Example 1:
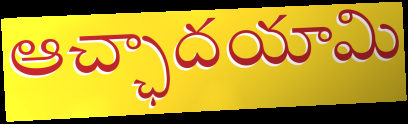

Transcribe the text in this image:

ఆచ్ఛాదయామి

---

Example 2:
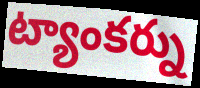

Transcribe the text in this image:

ట్యాంకర్ను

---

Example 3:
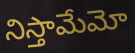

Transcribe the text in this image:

నిస్తామేమో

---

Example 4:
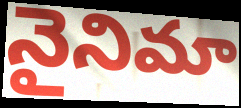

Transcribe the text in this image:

నైనిమా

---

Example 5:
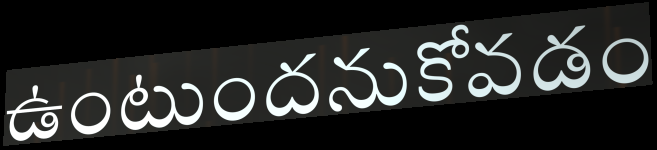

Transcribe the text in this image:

ఉంటుందనుకోవడం